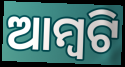
ଆମ୍ୱଟି